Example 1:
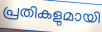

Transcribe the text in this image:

പ്രതികളുമായി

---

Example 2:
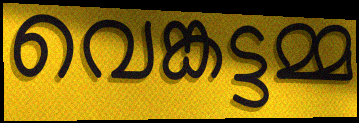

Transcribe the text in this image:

വെങ്കട്ടമ്മ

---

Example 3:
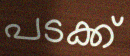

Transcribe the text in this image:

പടക്ക്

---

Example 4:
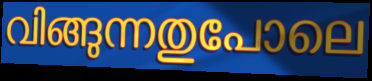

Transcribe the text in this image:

വിങ്ങുന്നതുപോലെ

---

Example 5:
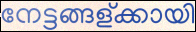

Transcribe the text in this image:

നേട്ടങ്ങള്ക്കായി